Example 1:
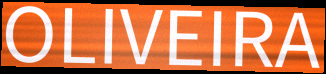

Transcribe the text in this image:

OLIVEIRA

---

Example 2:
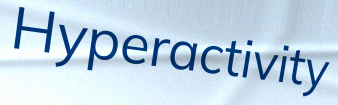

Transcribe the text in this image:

Hyperactivity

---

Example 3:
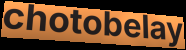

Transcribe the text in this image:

chotobelay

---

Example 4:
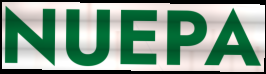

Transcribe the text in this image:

NUEPA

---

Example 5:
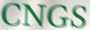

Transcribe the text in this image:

CNGS